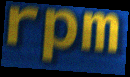
rpm